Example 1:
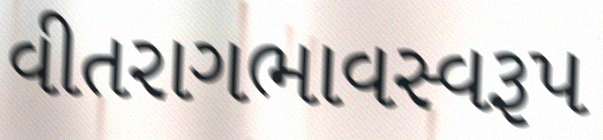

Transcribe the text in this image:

વીતરાગભાવસ્વરૂપ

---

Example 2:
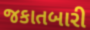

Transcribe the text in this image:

જકાતબારી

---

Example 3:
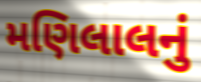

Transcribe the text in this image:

મણિલાલનું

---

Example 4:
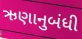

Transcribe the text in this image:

ઋણાનુબંધી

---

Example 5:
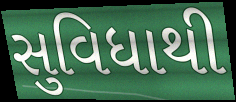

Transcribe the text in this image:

સુવિધાથી